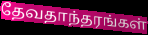
தேவதாந்தரங்கள்